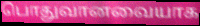
பொதுவானவையாக